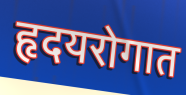
हृदयरोगात